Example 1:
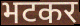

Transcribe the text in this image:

भटकर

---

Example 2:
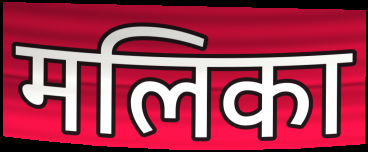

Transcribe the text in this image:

मलिका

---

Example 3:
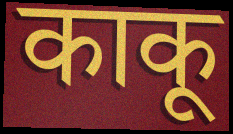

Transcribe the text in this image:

काकू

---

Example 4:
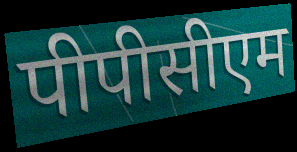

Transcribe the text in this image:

पीपीसीएम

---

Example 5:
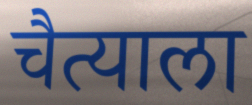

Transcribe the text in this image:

चैत्याला